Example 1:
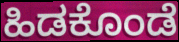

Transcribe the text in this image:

ಹಿಡಕೊಂಡೆ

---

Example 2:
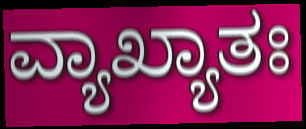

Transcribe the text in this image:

ವ್ಯಾಖ್ಯಾತಃ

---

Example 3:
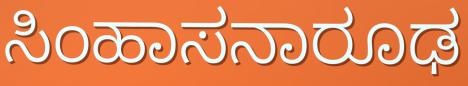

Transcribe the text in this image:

ಸಿಂಹಾಸನಾರೂಢ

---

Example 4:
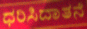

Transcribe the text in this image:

ಧರಿಸಿದಾತನೆ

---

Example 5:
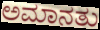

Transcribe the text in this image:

ಅಮಾನತು